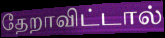
தேறாவிட்டால்